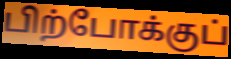
பிற்போக்குப்